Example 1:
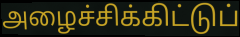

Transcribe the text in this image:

அழைச்சிக்கிட்டுப்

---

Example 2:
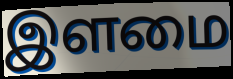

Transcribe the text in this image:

இளமை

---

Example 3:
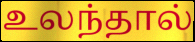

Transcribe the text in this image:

உலந்தால்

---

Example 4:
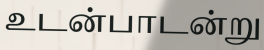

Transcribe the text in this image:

உடன்பாடன்று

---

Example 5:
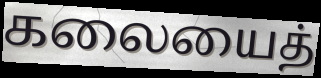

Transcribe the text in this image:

கலையைத்